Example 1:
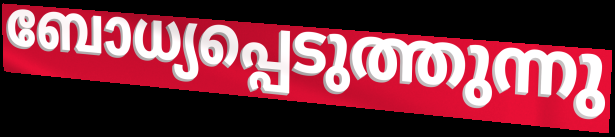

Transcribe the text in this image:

ബോധ്യപ്പെടുത്തുന്നു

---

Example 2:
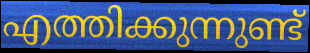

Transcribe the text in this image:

എത്തിക്കുന്നുണ്ട്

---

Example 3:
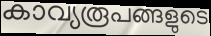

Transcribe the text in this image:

കാവ്യരൂപങ്ങളുടെ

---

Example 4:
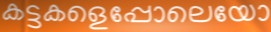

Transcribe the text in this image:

കട്ടകളെപ്പോലെയോ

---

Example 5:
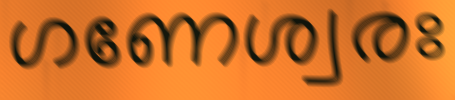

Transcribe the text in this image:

ഗണേശ്വരഃ